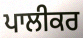
ਪਾਲੀਕਰ